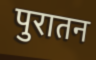
पुरातन